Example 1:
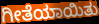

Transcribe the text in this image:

ಗೀತೆಯಾಯಿತು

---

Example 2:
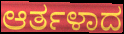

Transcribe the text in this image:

ಆರ್ತಳಾದ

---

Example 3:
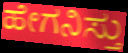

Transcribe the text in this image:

ಹೇಗನಿಸ್ತು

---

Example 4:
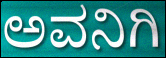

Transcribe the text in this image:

ಅವನಿಗಿ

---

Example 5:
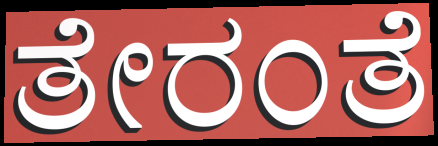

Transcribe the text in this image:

ತೇರಂತೆ